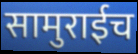
सामुराईच